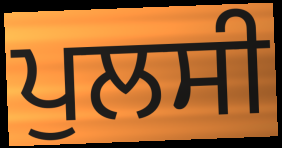
ਪੁਲਸੀ